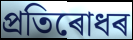
প্ৰতিৰোধৰ